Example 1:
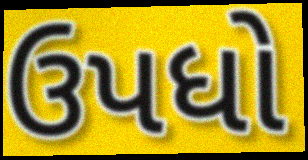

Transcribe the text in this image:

ઉપધો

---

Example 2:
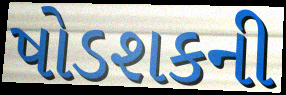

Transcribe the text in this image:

ષોડશકની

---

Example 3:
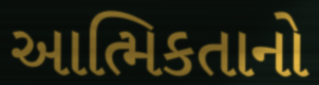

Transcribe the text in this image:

આત્મિકતાનો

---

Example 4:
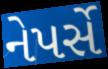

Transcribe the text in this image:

નેપર્સે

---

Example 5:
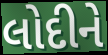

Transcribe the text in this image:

લોદીને